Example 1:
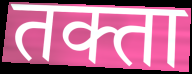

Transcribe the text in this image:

तक्ता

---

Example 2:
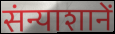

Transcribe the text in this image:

संन्याशानें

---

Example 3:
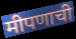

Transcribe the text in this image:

मीपणाची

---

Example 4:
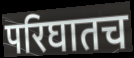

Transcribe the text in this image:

परिघातच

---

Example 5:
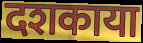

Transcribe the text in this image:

दशकाया